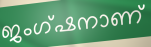
ജംഗ്ഷനാണ്